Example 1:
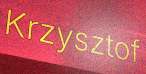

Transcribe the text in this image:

Krzysztof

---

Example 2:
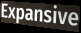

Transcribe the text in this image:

Expansive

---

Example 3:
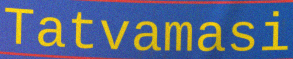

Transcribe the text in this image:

Tatvamasi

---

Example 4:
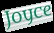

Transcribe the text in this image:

Joyce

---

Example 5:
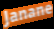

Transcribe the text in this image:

Janane